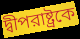
দ্বীপরাষ্ট্রকে